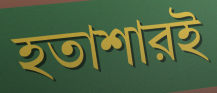
হতাশারই